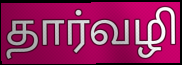
தார்வழி